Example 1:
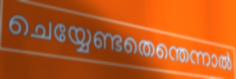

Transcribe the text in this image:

ചെയ്യേണ്ടതെന്തെന്നാൽ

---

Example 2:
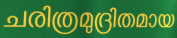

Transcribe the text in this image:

ചരിത്രമുദ്രിതമായ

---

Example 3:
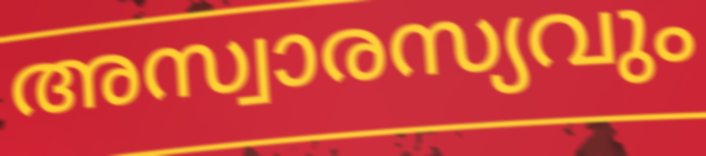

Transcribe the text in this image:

അസ്വാരസ്യവും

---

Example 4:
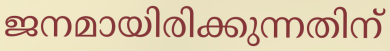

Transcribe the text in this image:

ജനമായിരിക്കുന്നതിന്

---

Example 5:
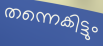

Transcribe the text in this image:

തന്നെകിട്ടും